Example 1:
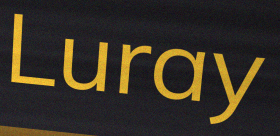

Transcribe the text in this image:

Luray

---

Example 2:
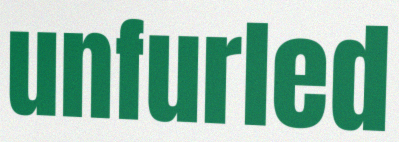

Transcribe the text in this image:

unfurled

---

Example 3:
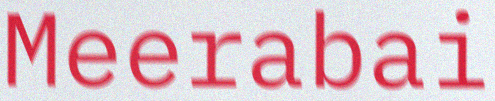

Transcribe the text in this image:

Meerabai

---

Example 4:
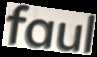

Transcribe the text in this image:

faul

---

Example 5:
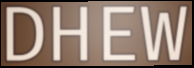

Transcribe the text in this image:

DHEW